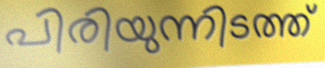
പിരിയുന്നിടത്ത്